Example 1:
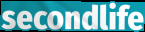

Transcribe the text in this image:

secondlife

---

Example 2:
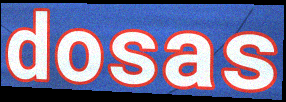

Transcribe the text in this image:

dosas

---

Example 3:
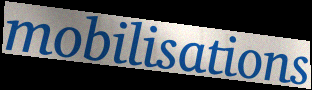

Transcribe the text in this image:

mobilisations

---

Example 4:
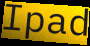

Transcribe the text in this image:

Ipad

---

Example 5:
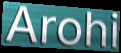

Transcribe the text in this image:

Arohi